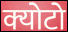
क्‍योटो